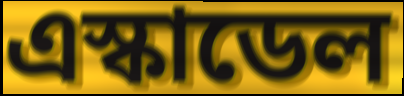
এস্কাডেল